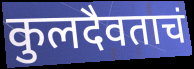
कुलदैवताचं